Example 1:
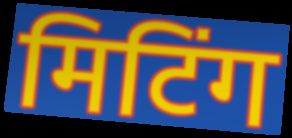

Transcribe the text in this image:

मिटिंग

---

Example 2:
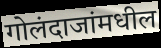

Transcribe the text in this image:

गोलंदाजांमधील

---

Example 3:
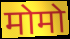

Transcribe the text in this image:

मोमो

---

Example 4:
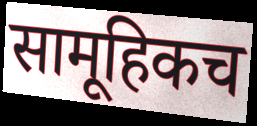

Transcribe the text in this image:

सामूहिकच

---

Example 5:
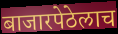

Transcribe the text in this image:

बाजारपेठेलाच